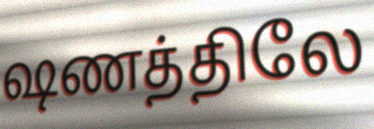
ஷணத்திலே